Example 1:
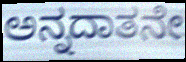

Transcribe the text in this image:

ಅನ್ನದಾತನೇ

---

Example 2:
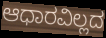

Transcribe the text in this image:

ಆಧಾರವಿಲ್ಲದ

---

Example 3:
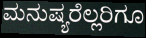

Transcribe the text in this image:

ಮನುಷ್ಯರೆಲ್ಲರಿಗೂ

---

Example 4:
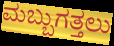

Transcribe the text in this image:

ಮಬ್ಬುಗತ್ತಲು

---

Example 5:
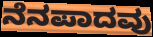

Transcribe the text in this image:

ನೆನಪಾದವು